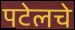
पटेलचे